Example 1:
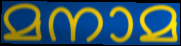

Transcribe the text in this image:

മനാമ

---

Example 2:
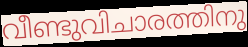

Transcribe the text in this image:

വീണ്ടുവിചാരത്തിനു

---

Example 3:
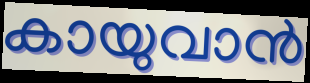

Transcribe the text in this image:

കായുവാൻ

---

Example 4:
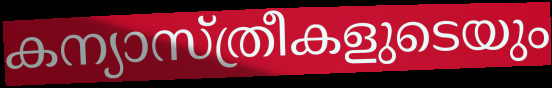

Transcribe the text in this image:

കന്യാസ്ത്രീകളുടെയും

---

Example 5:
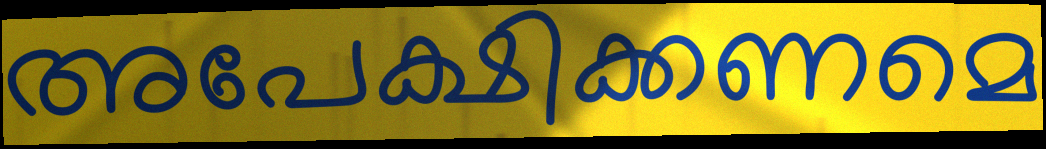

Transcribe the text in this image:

അപേക്ഷിക്കണമെ